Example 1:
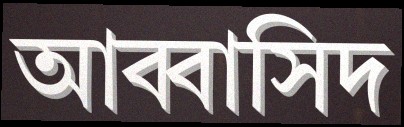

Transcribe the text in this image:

আব্বাসিদ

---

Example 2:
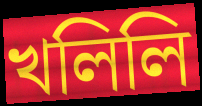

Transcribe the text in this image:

খলিলি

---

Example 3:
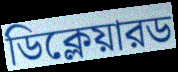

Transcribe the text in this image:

ডিক্লেয়ারড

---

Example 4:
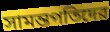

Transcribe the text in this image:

সামন্তপতিদের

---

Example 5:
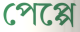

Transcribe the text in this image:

পেপ্পে